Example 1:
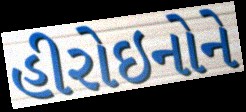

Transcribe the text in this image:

હીરોઇનોને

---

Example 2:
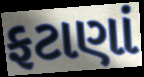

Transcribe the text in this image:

ફટાણાં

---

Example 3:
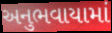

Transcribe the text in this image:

અનુભવાયામાં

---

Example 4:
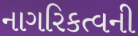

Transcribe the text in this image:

નાગરિકત્વની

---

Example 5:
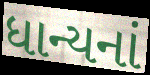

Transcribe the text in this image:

ધાન્યનાં